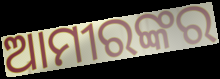
ଆମୀରଙ୍କର